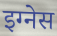
इग्नेस